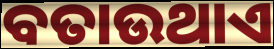
ବତାଉଥାଏ